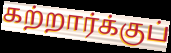
கற்றார்க்குப்